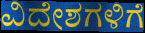
ವಿದೇಶಗಳಿಗೆ